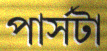
পার্সটা